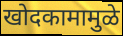
खोदकामामुळे